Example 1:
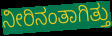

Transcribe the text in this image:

ನೀರಿನಂತಾಗಿತ್ತು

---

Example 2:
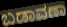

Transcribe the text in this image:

ಬಡಾವಣಾ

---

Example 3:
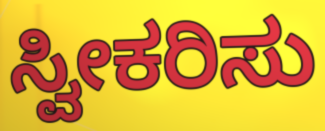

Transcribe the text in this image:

ಸ್ವೀಕರಿಸು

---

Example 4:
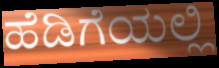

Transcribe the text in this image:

ಹೆಡಿಗೆಯಲ್ಲಿ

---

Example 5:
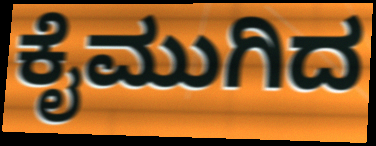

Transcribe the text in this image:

ಕೈಮುಗಿದ